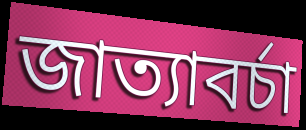
জাত্যাবৰ্চা